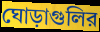
ঘোড়াগুলির